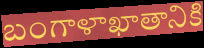
బంగాళాఖాతానికి